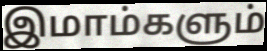
இமாம்களும்